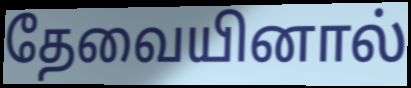
தேவையினால்